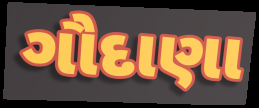
ગૌદાણા